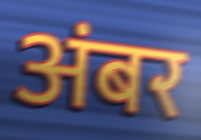
अंबर